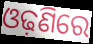
ଓଢ଼ଣିରେ